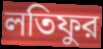
লতিফুর